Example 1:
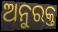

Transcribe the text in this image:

ଅନୁରକ୍ତ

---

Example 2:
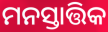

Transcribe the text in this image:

ମନସ୍ତାତ୍ତିକ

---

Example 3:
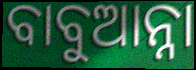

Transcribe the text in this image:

ବାବୁଆନ୍ନା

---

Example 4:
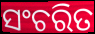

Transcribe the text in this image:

ସଂଚରିତ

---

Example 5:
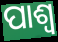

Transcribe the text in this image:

ପାଶ୍ୱ